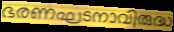
ഭരണഘടനാവിരുദ്ധ